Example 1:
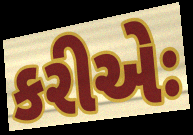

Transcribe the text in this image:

કરીએઃ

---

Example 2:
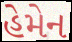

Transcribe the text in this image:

હેમેન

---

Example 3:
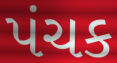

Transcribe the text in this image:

પંચક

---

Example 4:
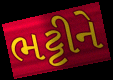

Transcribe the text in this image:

ભટ્ટીને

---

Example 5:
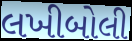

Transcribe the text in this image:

લખીબોલી